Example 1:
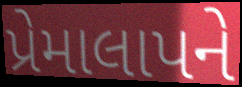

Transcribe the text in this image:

પ્રેમાલાપને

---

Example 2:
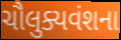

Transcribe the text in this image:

ચૌલુક્યવંશના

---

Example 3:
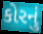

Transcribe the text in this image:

કોરનું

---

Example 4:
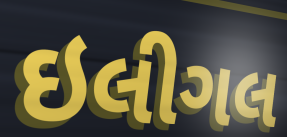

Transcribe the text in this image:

ઇલીગલ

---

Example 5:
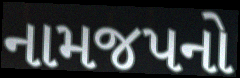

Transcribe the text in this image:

નામજપનો